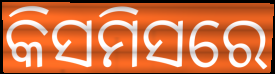
କିସମିସରେ